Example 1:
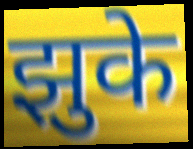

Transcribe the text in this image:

झुके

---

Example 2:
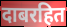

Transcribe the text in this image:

दाबरहित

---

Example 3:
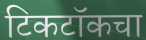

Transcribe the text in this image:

टिकटॉकचा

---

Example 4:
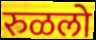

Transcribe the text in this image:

रुळलो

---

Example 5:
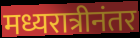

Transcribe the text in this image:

मध्यरात्रीनंतर